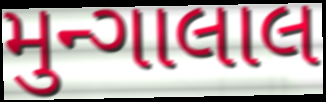
મુન્ગાલાલ